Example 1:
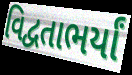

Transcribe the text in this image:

વિદ્વતાભર્યાં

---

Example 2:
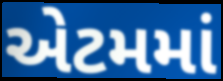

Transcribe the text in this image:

એટમમાં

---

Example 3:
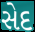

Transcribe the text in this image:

સેદ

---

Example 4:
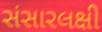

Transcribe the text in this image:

સંસારલક્ષી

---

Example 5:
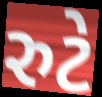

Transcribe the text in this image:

રુટે